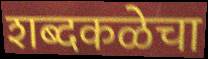
शब्दकळेचा